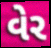
વેર